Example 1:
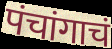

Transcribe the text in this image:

पंचांगाचं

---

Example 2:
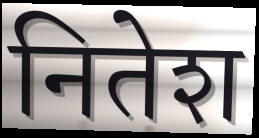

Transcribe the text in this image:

नितेश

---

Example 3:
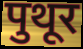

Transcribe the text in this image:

पुथूर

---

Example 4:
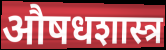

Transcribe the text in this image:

औषधशास्त्र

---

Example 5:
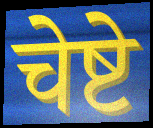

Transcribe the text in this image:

चेष्टे